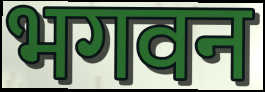
भगवन